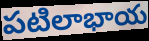
పటిలాభాయ